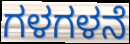
ಗಳಗಳನೆ